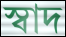
স্বাদ